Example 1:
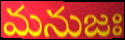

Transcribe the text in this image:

మనుజః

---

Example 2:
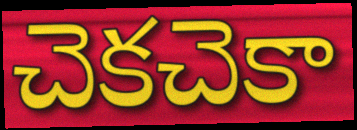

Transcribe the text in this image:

చెకచెకా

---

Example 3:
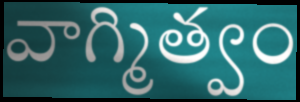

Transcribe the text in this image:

వాగ్మిత్వం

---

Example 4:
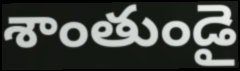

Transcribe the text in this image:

శాంతుండై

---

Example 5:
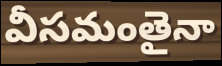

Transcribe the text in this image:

వీసమంతైనా